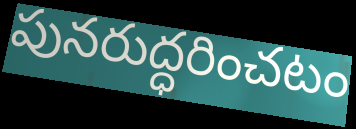
పునరుద్ధరించటం